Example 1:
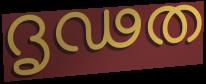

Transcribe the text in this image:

ദൃഢത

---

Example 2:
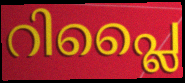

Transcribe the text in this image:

റിപ്ലൈ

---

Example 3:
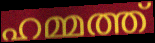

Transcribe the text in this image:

ഹമ്മത്ത്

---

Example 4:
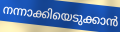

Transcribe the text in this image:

നന്നാക്കിയെടുക്കാൻ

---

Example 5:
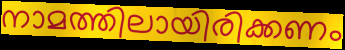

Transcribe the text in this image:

നാമത്തിലായിരിക്കണം